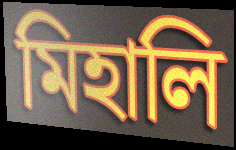
মিহালি